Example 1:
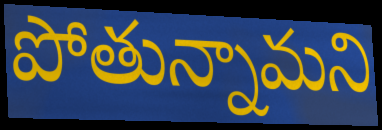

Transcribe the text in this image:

పోతున్నామని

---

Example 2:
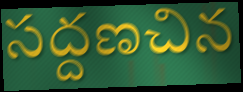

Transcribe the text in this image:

సద్దణచిన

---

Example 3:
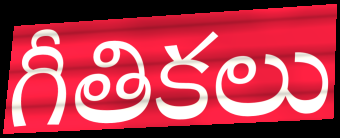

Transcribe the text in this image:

గీతికలు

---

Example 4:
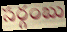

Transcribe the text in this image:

సర్గంబు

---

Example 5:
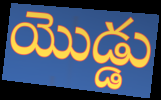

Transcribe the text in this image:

యొడ్డు